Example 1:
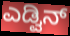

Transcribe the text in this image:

ಎಡ್ವಿನ್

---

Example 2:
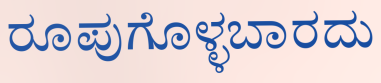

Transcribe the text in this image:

ರೂಪುಗೊಳ್ಳಬಾರದು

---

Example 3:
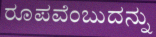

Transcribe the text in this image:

ರೂಪವೆಂಬುದನ್ನು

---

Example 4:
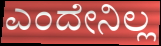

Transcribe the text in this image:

ಎಂದೇನಿಲ್ಲ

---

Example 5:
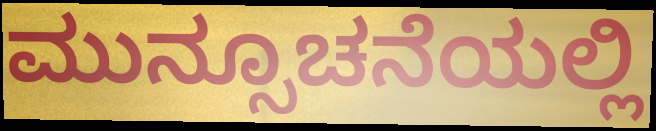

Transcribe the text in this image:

ಮುನ್ಸೂಚನೆಯಲ್ಲಿ